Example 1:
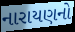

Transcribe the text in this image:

નારાયણનો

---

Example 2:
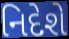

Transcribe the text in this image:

નિદેશે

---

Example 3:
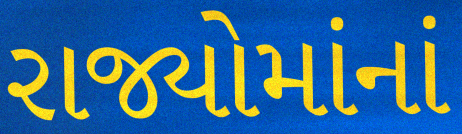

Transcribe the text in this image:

રાજ્યોમાંનાં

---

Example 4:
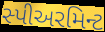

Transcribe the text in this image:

સ્પીઅરમિન્ટ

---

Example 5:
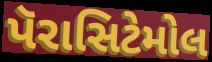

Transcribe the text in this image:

પૅરાસિટેમોલ